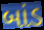
બાંડ